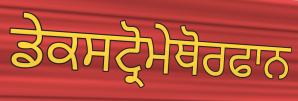
ਡੇਕਸਟ੍ਰੋਮੇਥੋਰਫਾਨ